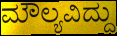
ಮೌಲ್ಯವಿದ್ದು